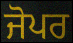
ਜੋਪਰ